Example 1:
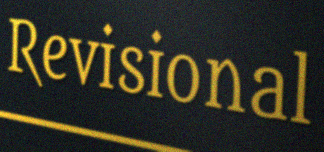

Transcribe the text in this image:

Revisional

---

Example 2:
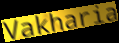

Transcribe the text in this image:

Vakharia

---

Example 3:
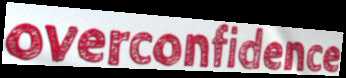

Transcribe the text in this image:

overconfidence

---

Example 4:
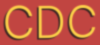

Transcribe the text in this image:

CDC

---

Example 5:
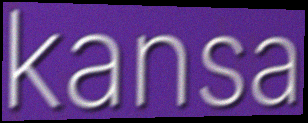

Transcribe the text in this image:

kansa